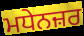
ਮਧੇਨਜ਼ਰ